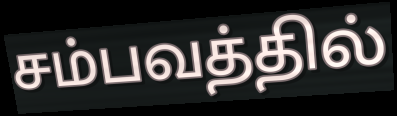
சம்பவத்தில்